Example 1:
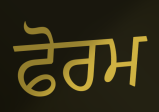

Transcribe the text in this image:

ਫੋਰਮ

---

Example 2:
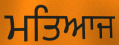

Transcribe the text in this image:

ਮਤਿਆਜ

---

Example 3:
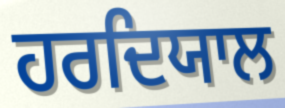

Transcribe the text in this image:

ਹਰਦਿਯਾਲ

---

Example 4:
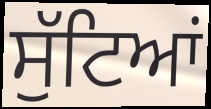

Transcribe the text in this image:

ਸੁੱਟਿਆਂ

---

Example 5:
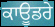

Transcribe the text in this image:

ਕਾਊਡਰੇ